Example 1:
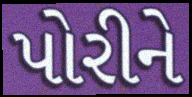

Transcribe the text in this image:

પોરીને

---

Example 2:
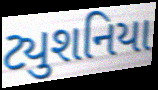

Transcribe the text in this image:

ટ્યુશનિયા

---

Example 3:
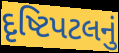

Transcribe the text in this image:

દૃષ્ટિપટલનું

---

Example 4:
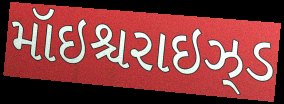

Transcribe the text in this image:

મૉઇશ્ચરાઇઝ્ડ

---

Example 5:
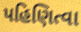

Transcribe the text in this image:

પહિણિત્વા